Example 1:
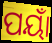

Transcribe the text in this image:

ପୟାଁ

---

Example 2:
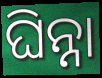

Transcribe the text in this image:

ଘିନ୍ନା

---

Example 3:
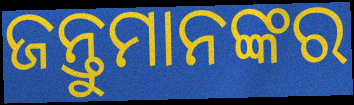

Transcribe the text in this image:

ଜନ୍ତୁମାନଙ୍କର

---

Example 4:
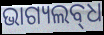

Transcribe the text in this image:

ଭାଗ୍ୟଲବ୍‌ଧ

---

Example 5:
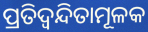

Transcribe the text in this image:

ପ୍ରତିଦ୍ୱନ୍ଦିତାମୂଳକ